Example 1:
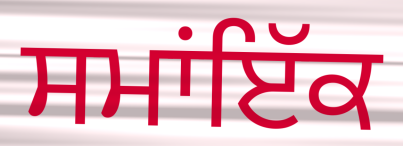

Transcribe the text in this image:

ਸਮਾਂਇੱਕ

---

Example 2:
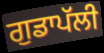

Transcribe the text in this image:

ਗੁਡਾਪੱਲੀ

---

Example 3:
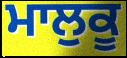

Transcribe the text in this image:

ਮਾਲੁਕੂ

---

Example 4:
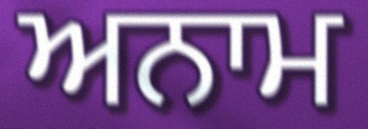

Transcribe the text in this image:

ਅਨਾਮ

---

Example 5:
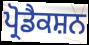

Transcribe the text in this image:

ਪ੍ਰੋਡੈਕਸ਼ਨ